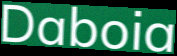
Daboia